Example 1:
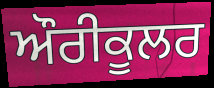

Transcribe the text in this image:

ਔਰੀਕੂਲਰ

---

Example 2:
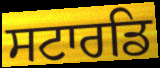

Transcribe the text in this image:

ਸਟਾਰਡਿ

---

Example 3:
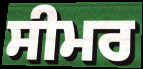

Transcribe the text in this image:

ਸੀਮਰ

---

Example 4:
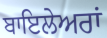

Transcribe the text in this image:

ਬਾਇਲੇਅਰਾਂ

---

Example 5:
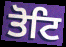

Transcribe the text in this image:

ਤੋਟਿ